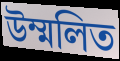
উম্মলিত